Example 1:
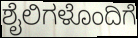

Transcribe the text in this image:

ಶೈಲಿಗಳೊಂದಿಗೆ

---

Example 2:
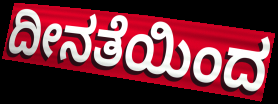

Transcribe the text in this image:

ದೀನತೆಯಿಂದ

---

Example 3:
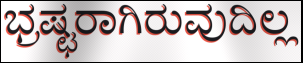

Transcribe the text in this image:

ಭ್ರಷ್ಟರಾಗಿರುವುದಿಲ್ಲ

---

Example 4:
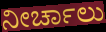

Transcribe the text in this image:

ನೀರ್ಚಾಲು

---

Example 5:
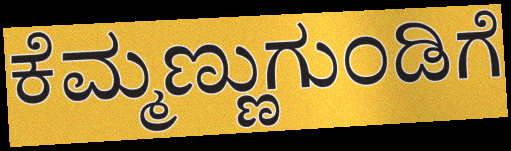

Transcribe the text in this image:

ಕೆಮ್ಮಣ್ಣುಗುಂಡಿಗೆ